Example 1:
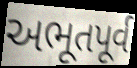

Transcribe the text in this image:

અભૂતપૂર્વ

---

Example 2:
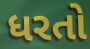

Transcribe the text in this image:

ધરતો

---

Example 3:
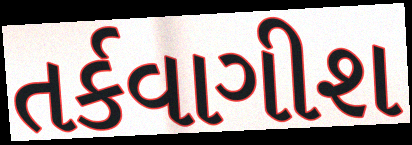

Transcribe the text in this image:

તર્કવાગીશ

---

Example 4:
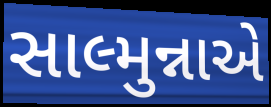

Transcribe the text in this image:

સાલ્મુન્નાએ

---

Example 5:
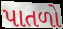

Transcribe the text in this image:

પાતળો